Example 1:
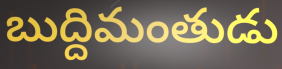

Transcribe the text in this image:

బుద్దిమంతుడు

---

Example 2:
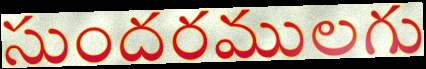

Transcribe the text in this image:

సుందరములగు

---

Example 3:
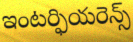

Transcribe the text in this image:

ఇంటర్ఫియరెన్స్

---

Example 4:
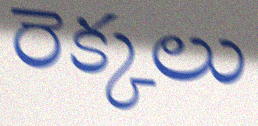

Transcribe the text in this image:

రెక్కలు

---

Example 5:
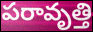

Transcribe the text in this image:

పరావృత్తి